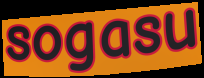
sogasu